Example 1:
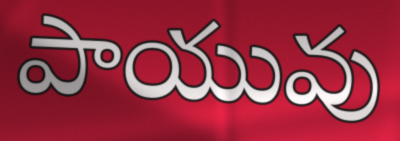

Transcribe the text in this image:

పాయువు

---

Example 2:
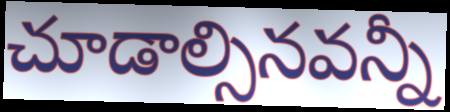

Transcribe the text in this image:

చూడాల్సినవన్నీ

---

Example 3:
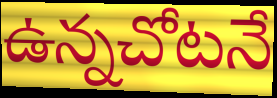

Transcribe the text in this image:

ఉన్నచోటనే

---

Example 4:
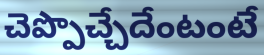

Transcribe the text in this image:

చెప్పొచ్చేదేంటంటే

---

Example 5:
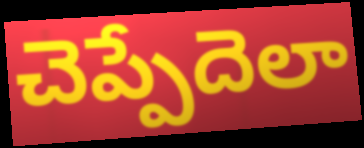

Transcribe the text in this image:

చెప్పేదెలా